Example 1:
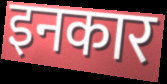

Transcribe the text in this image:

इनकार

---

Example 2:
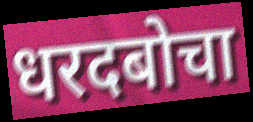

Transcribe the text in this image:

धरदबोचा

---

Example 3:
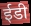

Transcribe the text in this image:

ईडी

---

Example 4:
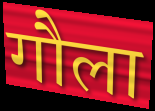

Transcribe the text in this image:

गौला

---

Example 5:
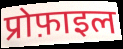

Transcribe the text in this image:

प्रोफ़ाइल